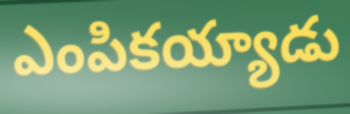
ఎంపికయ్యాడు